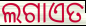
ଲଗାଏତ